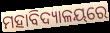
ମହାବିଦ୍ୟାଳୟରେ